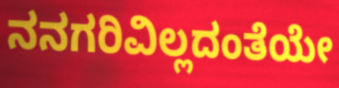
ನನಗರಿವಿಲ್ಲದಂತೆಯೇ